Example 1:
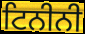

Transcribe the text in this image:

ਟਿਨੀਨੀ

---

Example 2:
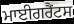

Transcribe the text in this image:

ਮਾਈਗਰੈਂਟਸ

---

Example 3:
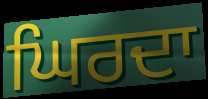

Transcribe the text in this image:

ਘਿਰਦਾ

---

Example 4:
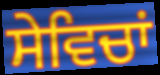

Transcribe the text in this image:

ਸੇਵਿਚਾਂ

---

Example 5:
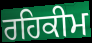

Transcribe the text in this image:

ਰਹਿਕੀਮ